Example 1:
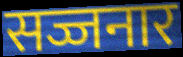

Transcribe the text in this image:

सज्जनार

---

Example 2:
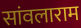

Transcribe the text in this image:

सांवलाराम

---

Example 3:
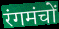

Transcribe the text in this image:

रंगमंचों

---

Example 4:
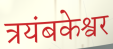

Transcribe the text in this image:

त्रयंबकेश्वर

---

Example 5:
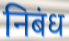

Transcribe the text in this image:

निबंध